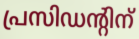
പ്രസിഡന്റിന്